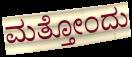
ಮತ್ತೋಂದು